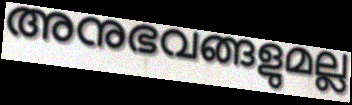
അനുഭവങ്ങളുമല്ല